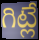
గిట్లే